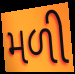
મળી